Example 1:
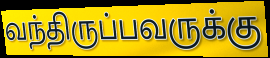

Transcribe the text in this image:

வந்திருப்பவருக்கு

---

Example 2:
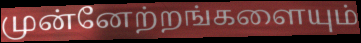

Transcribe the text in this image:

முன்னேற்றங்களையும்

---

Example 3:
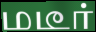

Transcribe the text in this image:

மடீர்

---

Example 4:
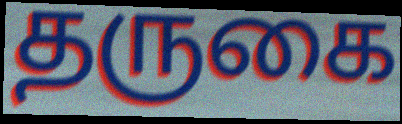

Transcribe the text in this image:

தருகை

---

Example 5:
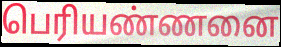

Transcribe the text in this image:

பெரியண்ணனை